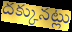
దక్కునట్లు